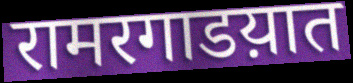
रामरगाडय़ात